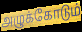
அழுக்கோடும்